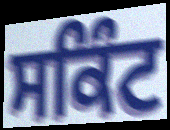
ਸਕਿੰਟ